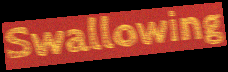
Swallowing